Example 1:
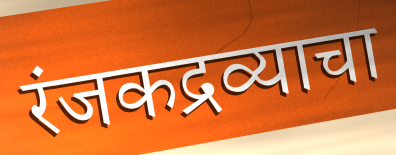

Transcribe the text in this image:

रंजकद्रव्याचा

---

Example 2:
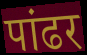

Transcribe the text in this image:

पांढर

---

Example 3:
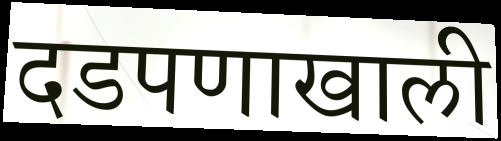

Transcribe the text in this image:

दडपणाखाली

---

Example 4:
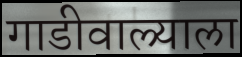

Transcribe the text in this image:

गाडीवाल्याला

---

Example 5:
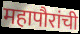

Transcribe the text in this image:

महापौरांची